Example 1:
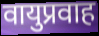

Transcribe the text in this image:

वायुप्रवाह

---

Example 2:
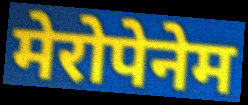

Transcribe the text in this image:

मेरोपेनेम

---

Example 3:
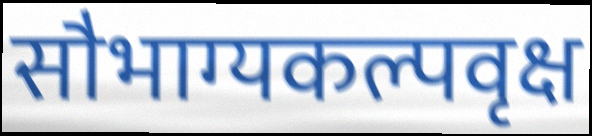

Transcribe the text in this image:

सौभाग्यकल्पवृक्ष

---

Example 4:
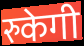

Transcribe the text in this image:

रुकेगी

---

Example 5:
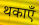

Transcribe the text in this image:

थकाएँ